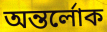
অন্তর্লোক